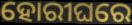
ହୋରୀଘରେ